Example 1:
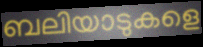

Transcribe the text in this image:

ബലിയാടുകളെ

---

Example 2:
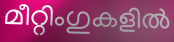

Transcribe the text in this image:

മീറ്റിംഗുകളിൽ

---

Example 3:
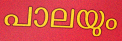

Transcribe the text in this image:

പാലയും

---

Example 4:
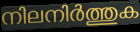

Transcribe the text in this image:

നിലനിർത്തുക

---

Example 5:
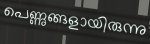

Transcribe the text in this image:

പെണ്ണുങ്ങളായിരുന്നു